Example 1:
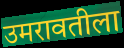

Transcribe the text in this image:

उमरावतीला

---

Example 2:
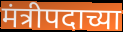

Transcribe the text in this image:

मंत्रीपदाच्या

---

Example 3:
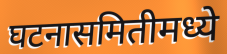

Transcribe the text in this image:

घटनासमितीमध्ये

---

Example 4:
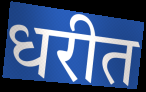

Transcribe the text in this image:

धरीत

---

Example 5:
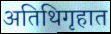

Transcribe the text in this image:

अतिथिगृहात